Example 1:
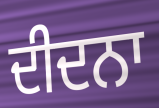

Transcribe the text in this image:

ਦੀਦਨਾ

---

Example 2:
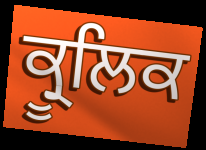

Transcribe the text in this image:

ਕ੍ਰੂਲਿਕ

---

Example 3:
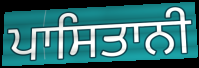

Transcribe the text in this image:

ਪਾਸਿਤਾਨੀ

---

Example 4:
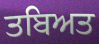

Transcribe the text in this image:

ਤਬਿਅਤ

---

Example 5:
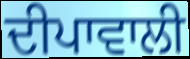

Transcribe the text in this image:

ਦੀਪਾਵਾਲੀ